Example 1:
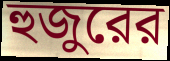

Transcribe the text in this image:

হুজুরের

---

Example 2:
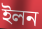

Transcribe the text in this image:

ইলন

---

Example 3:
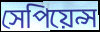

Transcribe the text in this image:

সেপিয়েন্স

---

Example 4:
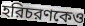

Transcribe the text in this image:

হরিচরণকেও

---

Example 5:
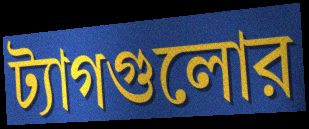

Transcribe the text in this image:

ট্যাগগুলোর